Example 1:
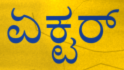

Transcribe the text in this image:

ಏಕ್ಟರ್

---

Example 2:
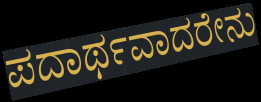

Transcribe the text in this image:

ಪದಾರ್ಥವಾದರೇನು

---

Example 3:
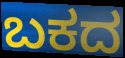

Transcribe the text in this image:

ಬಕದ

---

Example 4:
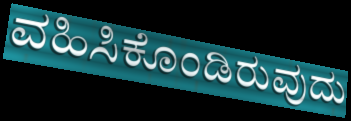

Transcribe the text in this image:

ವಹಿಸಿಕೊಂಡಿರುವುದು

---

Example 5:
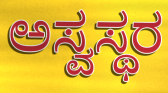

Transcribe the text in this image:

ಅಸ್ವಸ್ಥರ